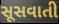
સૂસવાતી